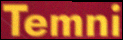
Temni